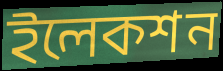
ইলেকশন